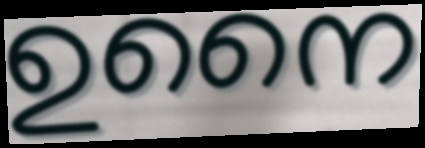
ഉനൈ